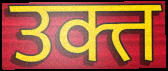
उक्त